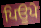
ਪਿਊਪੇ